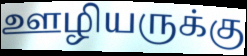
ஊழியருக்கு